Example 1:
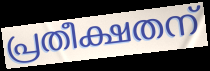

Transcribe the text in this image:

പ്രതീക്ഷതന്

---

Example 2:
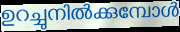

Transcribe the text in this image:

ഉറച്ചുനിൽക്കുമ്പോൾ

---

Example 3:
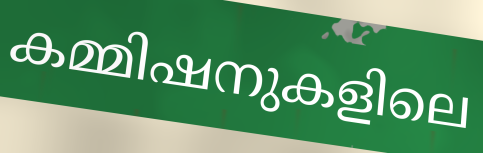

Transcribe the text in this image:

കമ്മിഷനുകളിലെ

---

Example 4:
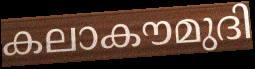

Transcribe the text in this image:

കലാകൗമുദി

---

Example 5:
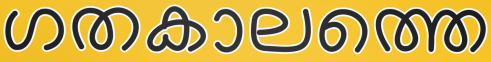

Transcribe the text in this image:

ഗതകാലത്തെ